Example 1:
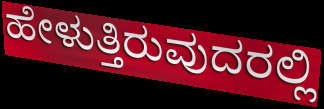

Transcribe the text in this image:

ಹೇಳುತ್ತಿರುವುದರಲ್ಲಿ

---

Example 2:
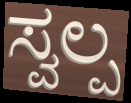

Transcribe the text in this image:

ಸ್ವಲ್ಪ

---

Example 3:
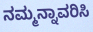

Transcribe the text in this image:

ನಮ್ಮನ್ನಾವರಿಸಿ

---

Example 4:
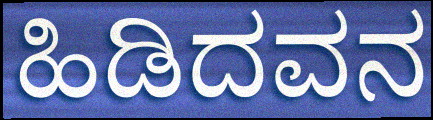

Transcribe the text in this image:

ಹಿಡಿದವನ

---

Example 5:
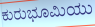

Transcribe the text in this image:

ಕುರುಭೂಮಿಯು